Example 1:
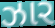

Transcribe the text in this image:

ઝાર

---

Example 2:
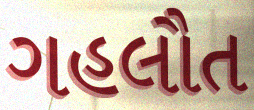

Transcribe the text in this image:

ગહલૌત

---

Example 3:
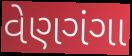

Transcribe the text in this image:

વેણગંગા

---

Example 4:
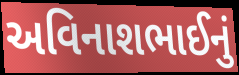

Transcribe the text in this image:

અવિનાશભાઈનું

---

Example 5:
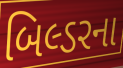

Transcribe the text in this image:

બિલ્ડરના